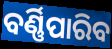
ବର୍ଣ୍ଣିପାରିବ